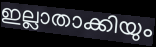
ഇല്ലാതാക്കിയും